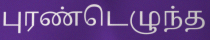
புரண்டெழுந்த